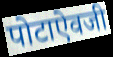
पोटाऐवजी